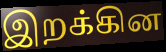
இறக்கின